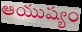
ఆయుష్యం